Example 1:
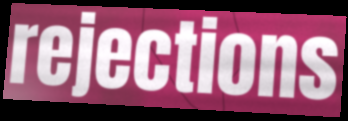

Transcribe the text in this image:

rejections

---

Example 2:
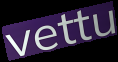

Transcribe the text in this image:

vettu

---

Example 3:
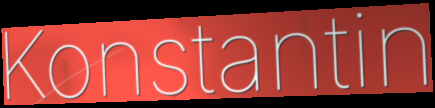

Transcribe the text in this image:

Konstantin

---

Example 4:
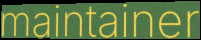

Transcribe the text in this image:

maintainer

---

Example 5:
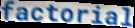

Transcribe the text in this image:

factorial